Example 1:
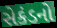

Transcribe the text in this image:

સેકંડનો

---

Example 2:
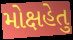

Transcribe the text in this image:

મોક્ષહેતુ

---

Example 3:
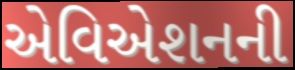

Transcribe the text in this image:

એવિએશનની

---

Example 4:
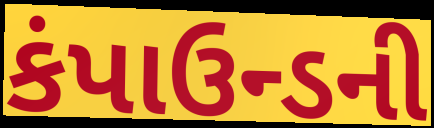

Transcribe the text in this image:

કંપાઉન્ડની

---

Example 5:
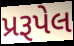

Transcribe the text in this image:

પ્રરૂપેલ